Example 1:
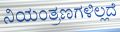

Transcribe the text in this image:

ನಿಯಂತ್ರಣಗಳಿಲ್ಲದೆ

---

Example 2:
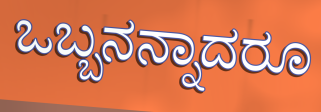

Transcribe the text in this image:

ಒಬ್ಬನನ್ನಾದರೂ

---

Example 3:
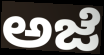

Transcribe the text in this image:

ಅಜೆ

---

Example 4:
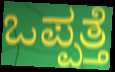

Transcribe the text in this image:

ಒಪ್ಪತ್ತೆ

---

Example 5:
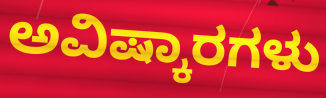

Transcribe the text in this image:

ಅವಿಷ್ಕಾರಗಳು